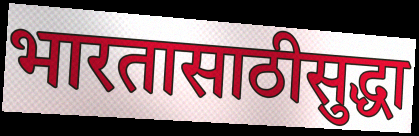
भारतासाठीसुद्धा